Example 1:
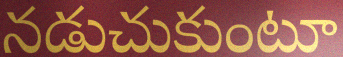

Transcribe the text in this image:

నడుచుకుంటూ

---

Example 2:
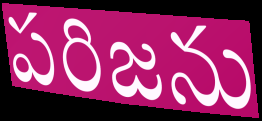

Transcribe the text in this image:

పరిజను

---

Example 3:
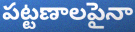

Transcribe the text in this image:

పట్టణాలపైనా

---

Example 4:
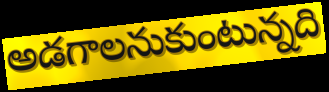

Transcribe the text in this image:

అడగాలనుకుంటున్నది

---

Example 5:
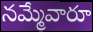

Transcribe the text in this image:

నమ్మేవారూ